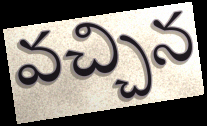
వచ్చిన